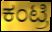
ಕಂಟ್ರಿ